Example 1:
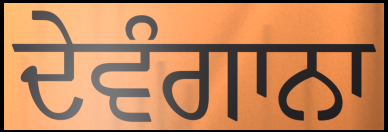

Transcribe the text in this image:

ਦੇਵੰਗਾਨਾ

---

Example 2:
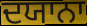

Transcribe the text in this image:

ਦਯਾਨਾ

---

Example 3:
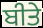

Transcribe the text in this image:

ਬੀਤੇ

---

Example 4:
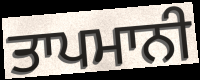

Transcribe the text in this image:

ਤਾਪਮਾਨੀ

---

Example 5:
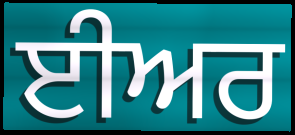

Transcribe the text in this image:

ਈਅਰ